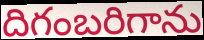
దిగంబరిగాను